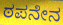
ಠಪನೇನ